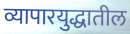
व्यापारयुद्धातील